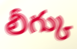
లీగ్కు